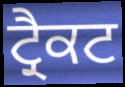
ਟ੍ਰੈਕਟ